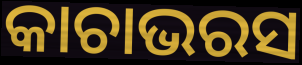
କାଚାଭରସ